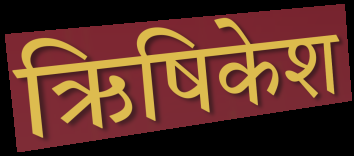
ऋिषिकेश